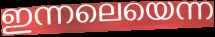
ഇന്നലെയെന്ന